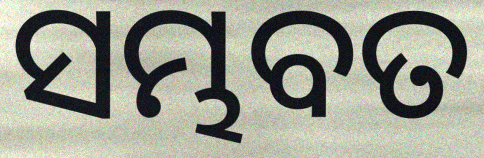
ସମ୍ଭବତ